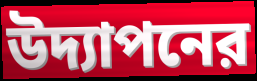
উদ্যাপনের